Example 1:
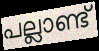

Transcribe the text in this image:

പല്ലാണ്ട്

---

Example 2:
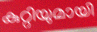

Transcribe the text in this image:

കുറ്റിയുമായി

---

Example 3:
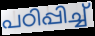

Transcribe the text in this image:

പഠിപ്പിച്ച്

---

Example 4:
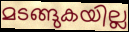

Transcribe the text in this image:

മടങ്ങുകയില്ല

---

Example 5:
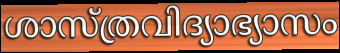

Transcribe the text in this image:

ശാസ്ത്രവിദ്യാഭ്യാസം